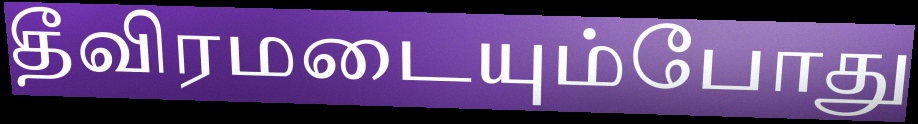
தீவிரமடையும்போது